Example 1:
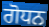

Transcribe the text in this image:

ਗੋਧਨ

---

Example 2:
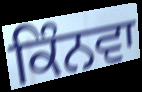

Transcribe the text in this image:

ਕਿੰਨਵਾ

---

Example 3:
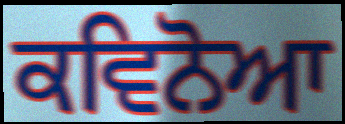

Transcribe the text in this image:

ਕਵਿਨੋਆ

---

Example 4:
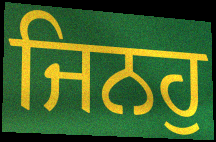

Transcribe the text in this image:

ਜਿਨਹੁ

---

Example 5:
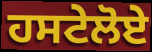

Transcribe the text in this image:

ਹਸਟੇਲੋਏ